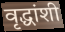
वृद्धांशी